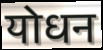
योधन